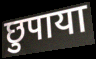
छुपाया